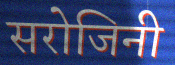
सरोजिनी